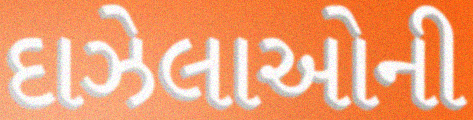
દાઝેલાઓની